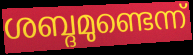
ശബ്ദമുണ്ടെന്ന്